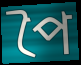
পৈ